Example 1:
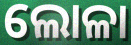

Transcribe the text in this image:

ଲୋଳା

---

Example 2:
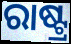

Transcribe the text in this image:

ରାଷ୍ଟ୍ର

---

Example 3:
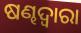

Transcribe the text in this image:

ଷଣ୍ଢଦ୍ୱାରା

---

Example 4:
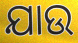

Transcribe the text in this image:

ଯାଉ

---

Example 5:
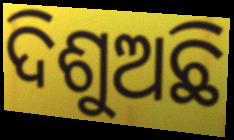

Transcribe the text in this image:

ଦିଶୁଅଛି